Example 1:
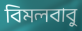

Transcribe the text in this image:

বিমলবাবু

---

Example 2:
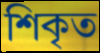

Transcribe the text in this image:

শিকৃত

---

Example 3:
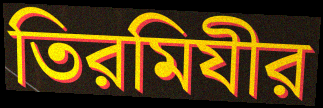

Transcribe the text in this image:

তিরমিযীর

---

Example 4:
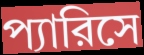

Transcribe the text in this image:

প্যারিসে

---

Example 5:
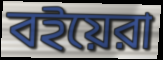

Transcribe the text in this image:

বইয়েরা